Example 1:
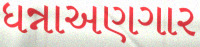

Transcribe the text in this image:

ધન્નાઅણગાર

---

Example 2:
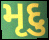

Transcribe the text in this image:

મૃદુ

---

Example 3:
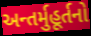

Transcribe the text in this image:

અન્તર્મુહૂર્તનો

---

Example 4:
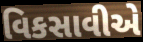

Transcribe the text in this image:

વિકસાવીએ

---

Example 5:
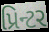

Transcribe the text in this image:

પ્રિન્ટર